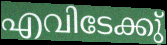
എവിടേക്കു്